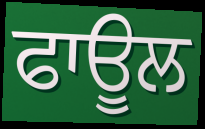
ਫਾਊਲ